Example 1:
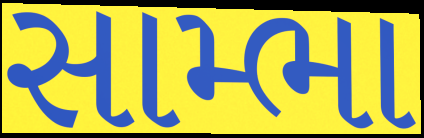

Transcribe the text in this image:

સામ્ભા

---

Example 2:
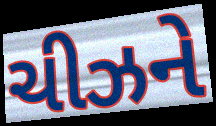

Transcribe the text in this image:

ચીઝને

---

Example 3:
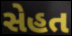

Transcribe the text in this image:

સેહત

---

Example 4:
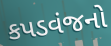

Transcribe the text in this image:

કપડવંજનો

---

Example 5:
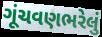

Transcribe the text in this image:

ગૂંચવણભરેલું